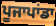
ਪੂਜਾਪਾਂਡਾ